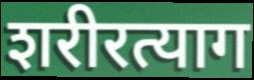
शरीरत्याग